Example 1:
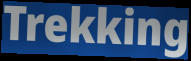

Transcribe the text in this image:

Trekking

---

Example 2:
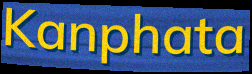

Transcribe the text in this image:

Kanphata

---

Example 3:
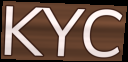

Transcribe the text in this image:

KYC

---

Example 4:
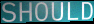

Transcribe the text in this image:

SHOULD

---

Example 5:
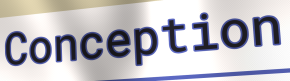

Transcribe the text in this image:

Conception